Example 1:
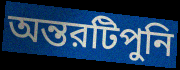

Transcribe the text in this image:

অন্তরটিপুনি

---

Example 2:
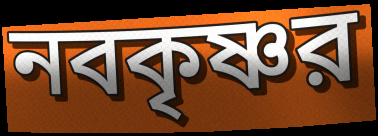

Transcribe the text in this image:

নবকৃষ্ণর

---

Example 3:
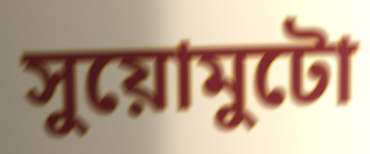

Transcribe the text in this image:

সুয়োমুটো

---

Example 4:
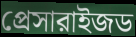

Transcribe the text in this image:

প্রেসারাইজড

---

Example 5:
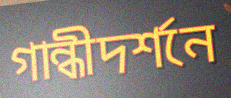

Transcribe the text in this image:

গান্ধীদর্শনে